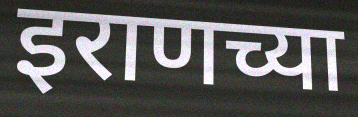
इराणच्या